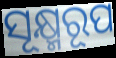
ସୂକ୍ଷ୍ମରୂପ